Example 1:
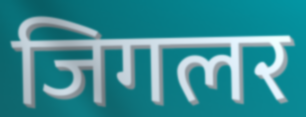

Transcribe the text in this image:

जिगलर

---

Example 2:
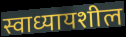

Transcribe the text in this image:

स्वाध्यायशील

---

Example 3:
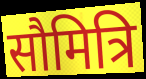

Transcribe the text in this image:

सौमित्रि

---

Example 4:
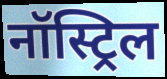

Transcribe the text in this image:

नॉस्ट्रिल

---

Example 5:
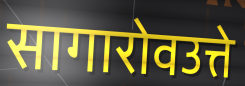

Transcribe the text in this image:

सागारोवउत्ते